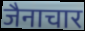
जैनाचार